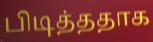
பிடித்ததாக